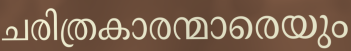
ചരിത്രകാരന്മാരെയും